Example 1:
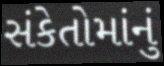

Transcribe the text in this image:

સંકેતોમાંનું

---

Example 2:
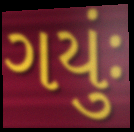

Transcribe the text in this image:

ગયુંઃ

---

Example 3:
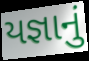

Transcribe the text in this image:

યજ્ઞાનું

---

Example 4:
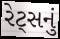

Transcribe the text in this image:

રેટ્સનું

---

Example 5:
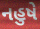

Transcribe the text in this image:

નહુષે